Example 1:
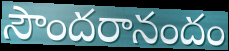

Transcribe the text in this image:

సౌందరానందం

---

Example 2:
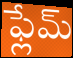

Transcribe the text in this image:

ఫ్లేమ్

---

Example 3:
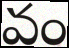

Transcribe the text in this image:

వం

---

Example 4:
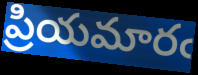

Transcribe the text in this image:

ప్రియమారఁ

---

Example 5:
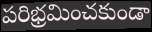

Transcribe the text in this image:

పరిభ్రమించకుండా